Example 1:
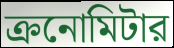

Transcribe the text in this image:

ক্রনোমিটার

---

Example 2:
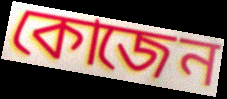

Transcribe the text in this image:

কোজেন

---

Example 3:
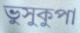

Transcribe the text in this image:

ভুসুকুপা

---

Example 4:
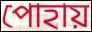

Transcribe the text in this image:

পোহায়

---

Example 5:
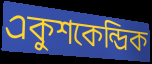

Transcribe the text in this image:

একুশকেন্দ্রিক